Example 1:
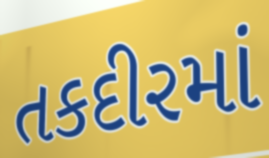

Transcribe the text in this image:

તકદીરમાં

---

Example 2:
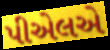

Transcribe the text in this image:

પીએલએ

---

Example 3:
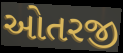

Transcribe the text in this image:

ઓતરજી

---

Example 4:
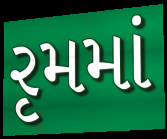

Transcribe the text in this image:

રૃમમાં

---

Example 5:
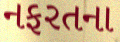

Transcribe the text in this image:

નફરતના